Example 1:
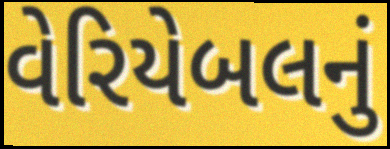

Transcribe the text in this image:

વેરિયેબલનું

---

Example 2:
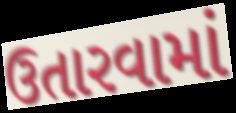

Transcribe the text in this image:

ઉતારવામાં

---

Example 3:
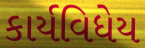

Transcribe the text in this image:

કાર્યવિધેય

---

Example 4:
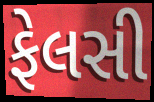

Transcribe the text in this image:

ફેલસી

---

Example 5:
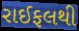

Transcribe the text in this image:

રાઈફલથી